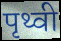
पृथ्वी